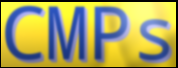
CMPs